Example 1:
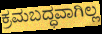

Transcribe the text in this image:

ಕ್ರಮಬದ್ಧವಾಗಿಲ್ಲ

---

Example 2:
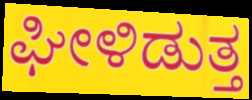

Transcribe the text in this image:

ಘೀಳಿಡುತ್ತ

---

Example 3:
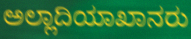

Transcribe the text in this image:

ಅಲ್ಲಾದಿಯಾಖಾನರು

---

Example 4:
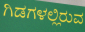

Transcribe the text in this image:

ಗಿಡಗಳಲ್ಲಿರುವ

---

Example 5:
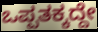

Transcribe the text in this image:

ಒಪ್ಪತಕ್ಕದ್ದೇ